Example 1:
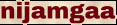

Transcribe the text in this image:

nijamgaa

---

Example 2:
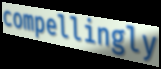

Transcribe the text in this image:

compellingly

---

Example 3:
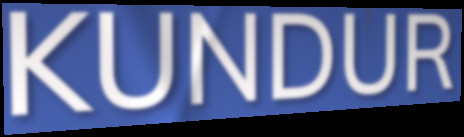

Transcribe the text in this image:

KUNDUR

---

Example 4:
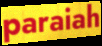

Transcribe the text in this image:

paraiah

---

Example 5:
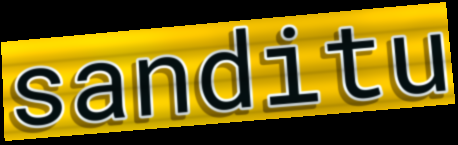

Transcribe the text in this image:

sanditu